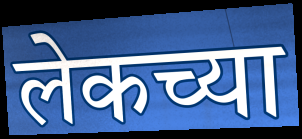
लेकच्या